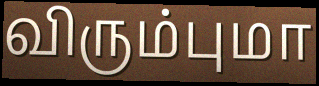
விரும்புமா